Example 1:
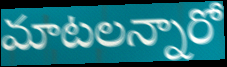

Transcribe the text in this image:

మాటలన్నారో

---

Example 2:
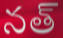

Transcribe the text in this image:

నత్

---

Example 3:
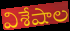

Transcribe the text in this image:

విశేషాల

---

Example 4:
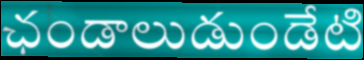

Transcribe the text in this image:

ఛండాలుడుండేటి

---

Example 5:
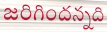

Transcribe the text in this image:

జరిగిందన్నది